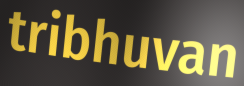
tribhuvan